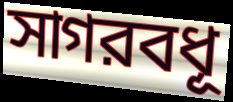
সাগরবধূ